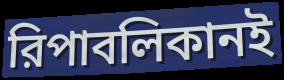
রিপাবলিকানই